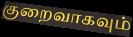
குறைவாகவும்